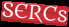
SERCs